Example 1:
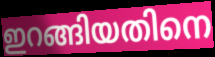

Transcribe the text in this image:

ഇറങ്ങിയതിനെ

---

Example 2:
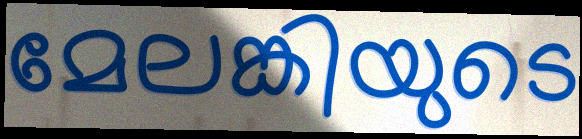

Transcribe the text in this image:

മേലങ്കിയുടെ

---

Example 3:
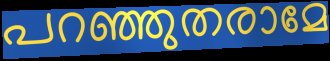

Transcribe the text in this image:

പറഞ്ഞുതരാമേ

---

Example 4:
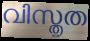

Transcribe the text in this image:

വിസ്തൃത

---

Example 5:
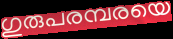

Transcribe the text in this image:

ഗുരുപരമ്പരയെ